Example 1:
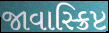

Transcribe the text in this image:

જાવાસ્ક્રિપ્ટ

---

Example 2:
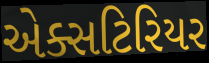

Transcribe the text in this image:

એક્સટિરિયર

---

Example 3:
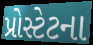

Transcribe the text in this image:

પ્રોસ્ટેટના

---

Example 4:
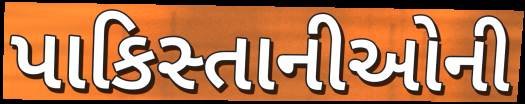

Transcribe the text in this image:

પાકિસ્તાનીઓની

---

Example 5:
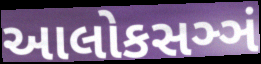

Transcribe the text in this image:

આલોકસઞ્ઞં